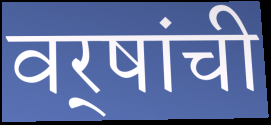
वर्षांची